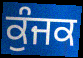
ਕੁੰਜਕ